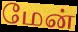
மேன்